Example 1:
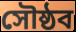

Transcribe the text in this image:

সৌষ্ঠব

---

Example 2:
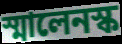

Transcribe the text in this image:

স্মালেনস্ক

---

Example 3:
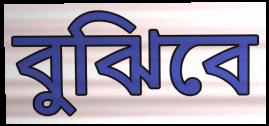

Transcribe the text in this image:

বুঝিবে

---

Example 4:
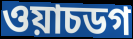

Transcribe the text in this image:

ওয়াচডগ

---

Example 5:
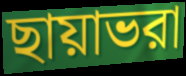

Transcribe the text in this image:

ছায়াভরা